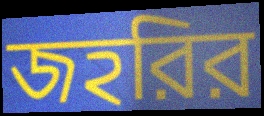
জহরির